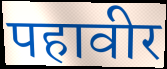
पहावीर